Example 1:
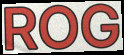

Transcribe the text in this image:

ROG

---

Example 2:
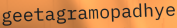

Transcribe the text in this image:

geetagramopadhye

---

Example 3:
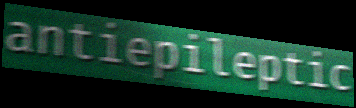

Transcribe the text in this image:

antiepileptic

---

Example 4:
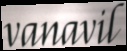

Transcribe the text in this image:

vanavil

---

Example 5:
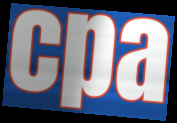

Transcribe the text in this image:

cpa